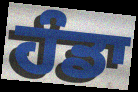
ਹੰਡਾ